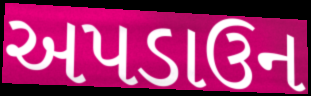
અપડાઉન